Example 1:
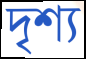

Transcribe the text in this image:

দৃশ্য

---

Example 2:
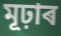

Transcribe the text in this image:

মূঢ়াৰ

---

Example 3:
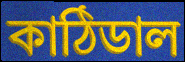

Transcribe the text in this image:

কাঠিডাল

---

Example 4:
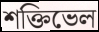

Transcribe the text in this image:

শক্তিভেল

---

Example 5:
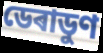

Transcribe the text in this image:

ডেৰাডুণ